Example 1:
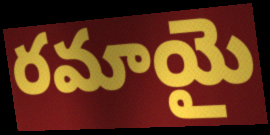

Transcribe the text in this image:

రమాయై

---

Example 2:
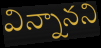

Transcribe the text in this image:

విన్నానని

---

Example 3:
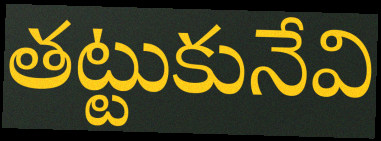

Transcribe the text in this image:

తట్టుకునేవి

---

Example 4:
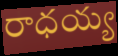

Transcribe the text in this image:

రాధయ్య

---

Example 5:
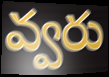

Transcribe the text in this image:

వ్వరు